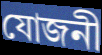
যোজনী